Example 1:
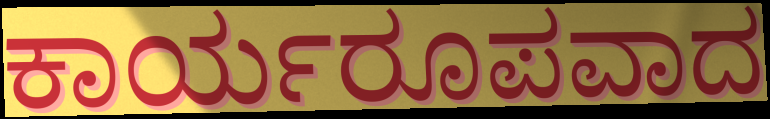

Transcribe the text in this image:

ಕಾರ್ಯರೂಪವಾದ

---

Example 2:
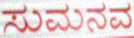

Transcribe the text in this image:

ಸುಮನವ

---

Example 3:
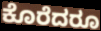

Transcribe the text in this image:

ಕೊರೆದರೂ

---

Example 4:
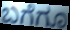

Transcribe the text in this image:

ಬಗೆಗೂ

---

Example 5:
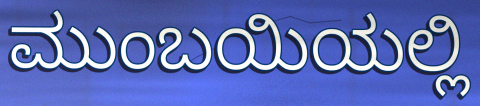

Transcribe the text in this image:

ಮುಂಬಯಿಯಲ್ಲಿ